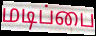
மடிப்பை